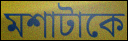
মশাটাকে